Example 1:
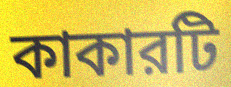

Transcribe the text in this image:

কাকারটি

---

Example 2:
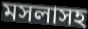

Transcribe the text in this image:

মসলাসহ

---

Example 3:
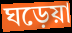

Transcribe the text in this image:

ঘড়েয়া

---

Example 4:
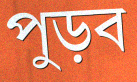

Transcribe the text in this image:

পুড়ব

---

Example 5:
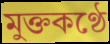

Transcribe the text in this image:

মুক্তকণ্ঠে